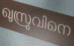
ഖുസ്രുവിനെ